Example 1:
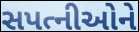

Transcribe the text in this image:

સપત્નીઓને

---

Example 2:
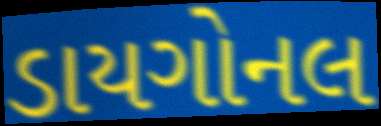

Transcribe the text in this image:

ડાયગોનલ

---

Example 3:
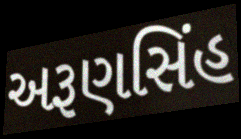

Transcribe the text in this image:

અરૂણસિંહ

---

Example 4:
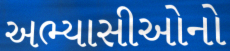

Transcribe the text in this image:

અભ્યાસીઓનો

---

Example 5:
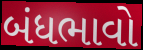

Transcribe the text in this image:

બંધભાવો